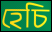
হেচি